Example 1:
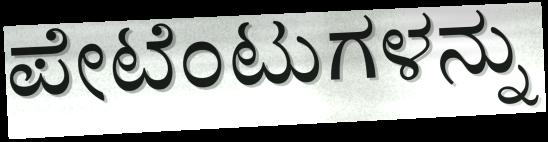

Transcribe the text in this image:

ಪೇಟೆಂಟುಗಳನ್ನು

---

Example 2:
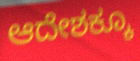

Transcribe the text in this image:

ಆದೇಶಕ್ಕೂ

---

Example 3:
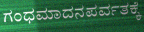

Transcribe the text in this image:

ಗಂಧಮಾದನಪರ್ವತಕ್ಕೆ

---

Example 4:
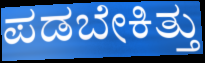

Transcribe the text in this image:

ಪಡಬೇಕಿತ್ತು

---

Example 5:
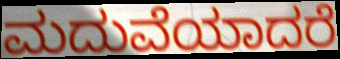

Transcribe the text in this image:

ಮದುವೆಯಾದರೆ